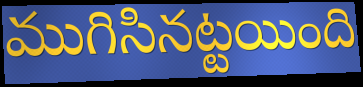
ముగిసినట్టయింది